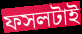
ফসলটাই